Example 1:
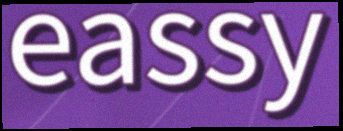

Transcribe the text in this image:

eassy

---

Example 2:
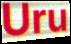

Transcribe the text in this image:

Uru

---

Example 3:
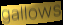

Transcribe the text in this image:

gallows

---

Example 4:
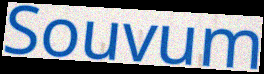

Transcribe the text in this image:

Souvum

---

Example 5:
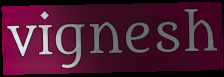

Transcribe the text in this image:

vignesh